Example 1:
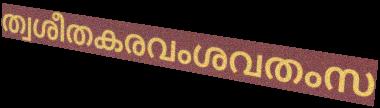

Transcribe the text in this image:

ത്വശീതകരവംശവതംസ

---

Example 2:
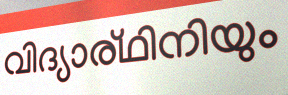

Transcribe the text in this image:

വിദ്യാര്ഥിനിയും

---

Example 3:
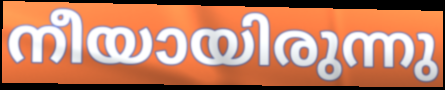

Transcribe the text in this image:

നീയായിരുന്നു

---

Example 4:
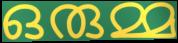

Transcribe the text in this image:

ഒരുമ്മ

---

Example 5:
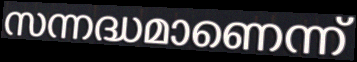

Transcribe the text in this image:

സന്നദ്ധമാണെന്ന്